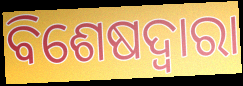
ବିଶେଷଦ୍ଵାରା